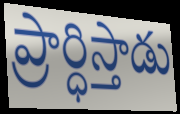
ప్రార్ధిస్తాడు